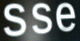
sse